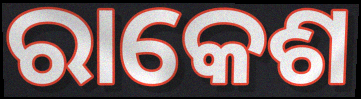
ରାକେଶ